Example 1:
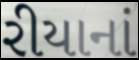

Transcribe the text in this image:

રીયાનાં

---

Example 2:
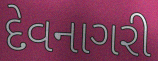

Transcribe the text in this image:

દેવનાગરી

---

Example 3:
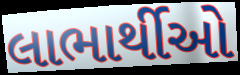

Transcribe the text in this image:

લાભાર્થીઓ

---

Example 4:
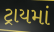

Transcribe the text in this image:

ટ્રાયમાં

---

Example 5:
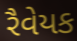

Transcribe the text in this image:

રૈવેયક